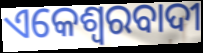
ଏକେଶ୍ଵରବାଦୀ